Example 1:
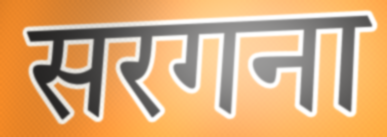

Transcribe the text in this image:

सरगना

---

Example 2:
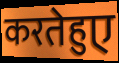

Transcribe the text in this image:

करतेहुए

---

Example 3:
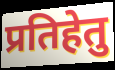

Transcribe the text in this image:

प्रतिहेतु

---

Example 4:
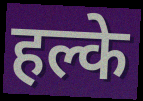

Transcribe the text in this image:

हल्के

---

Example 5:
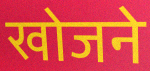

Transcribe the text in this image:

खोजने